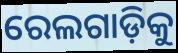
ରେଲଗାଡ଼ିକୁ